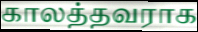
காலத்தவராக